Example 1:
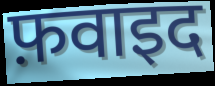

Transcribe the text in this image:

फ़वाइद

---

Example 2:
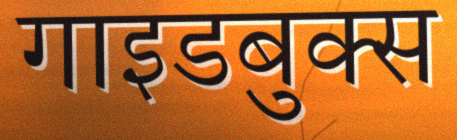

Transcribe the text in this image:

गाइडबुक्स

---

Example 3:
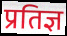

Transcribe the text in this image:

प्रतिज्ञ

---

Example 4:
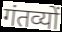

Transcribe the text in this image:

गंतव्यों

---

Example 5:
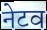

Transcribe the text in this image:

नेटव